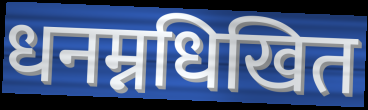
धनम्नधिखित